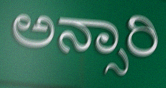
ಅನ್ಸಾರಿ